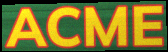
ACME